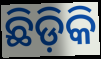
ଛିଡ଼ିକି